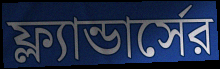
ফ্ল্যান্ডার্সের